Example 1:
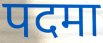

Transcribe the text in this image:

पदमा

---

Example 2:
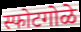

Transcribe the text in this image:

स्फोटगोळे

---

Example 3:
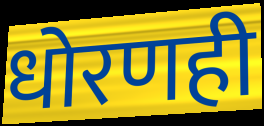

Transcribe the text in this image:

धोरणही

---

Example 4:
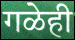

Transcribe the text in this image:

गळेही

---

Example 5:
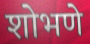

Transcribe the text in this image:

शोभणे